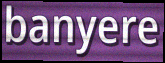
banyere